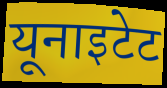
यूनाइटेट